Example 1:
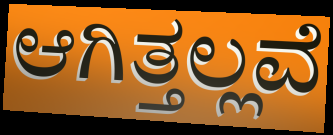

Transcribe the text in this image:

ಆಗಿತ್ತಲ್ಲವೆ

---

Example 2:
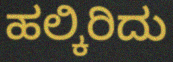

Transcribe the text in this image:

ಹಲ್ಕಿರಿದು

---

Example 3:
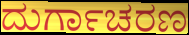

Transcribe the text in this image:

ದುರ್ಗಾಚರಣ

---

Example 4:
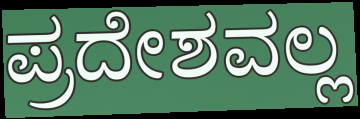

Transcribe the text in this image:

ಪ್ರದೇಶವಲ್ಲ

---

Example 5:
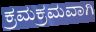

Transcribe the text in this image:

ಕ್ರಮಕ್ರಮವಾಗಿ